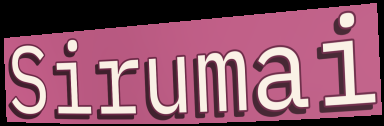
Sirumai